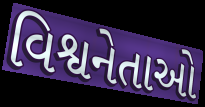
વિશ્વનેતાઓ